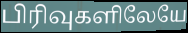
பிரிவுகளிலேயே